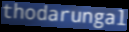
thodarungal